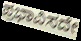
ಪ್ರಭಾವಿಸದೇ